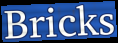
Bricks